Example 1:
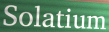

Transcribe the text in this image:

Solatium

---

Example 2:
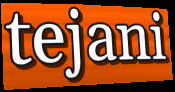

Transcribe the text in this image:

tejani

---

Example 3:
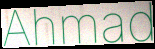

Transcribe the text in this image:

Ahmad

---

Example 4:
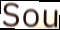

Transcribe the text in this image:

Sou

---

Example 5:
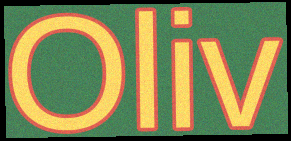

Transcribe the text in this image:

Oliv